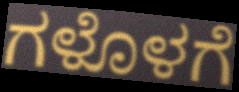
ಗಳೊಳಗೆ